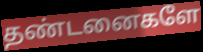
தண்டனைகளே